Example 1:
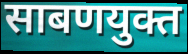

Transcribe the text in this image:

साबणयुक्त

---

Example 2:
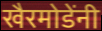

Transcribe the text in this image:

खैरमोडेंनी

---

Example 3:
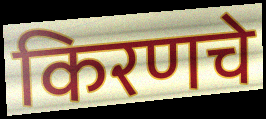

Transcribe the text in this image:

किरणचे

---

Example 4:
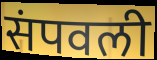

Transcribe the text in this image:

संपवली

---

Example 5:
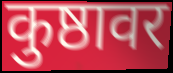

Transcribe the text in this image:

कुष्ठावर